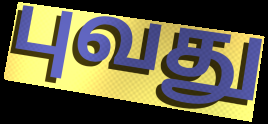
புவது